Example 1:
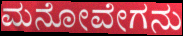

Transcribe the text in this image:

ಮನೋವೇಗನು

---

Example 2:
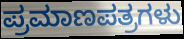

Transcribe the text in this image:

ಪ್ರಮಾಣಪತ್ರಗಳು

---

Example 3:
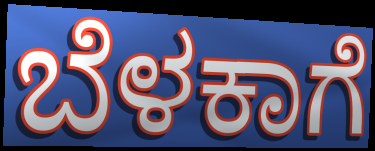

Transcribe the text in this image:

ಬೆಳಕಾಗೆ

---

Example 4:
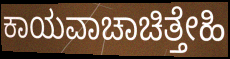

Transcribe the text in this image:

ಕಾಯವಾಚಾಚಿತ್ತೇಹಿ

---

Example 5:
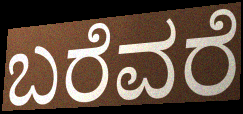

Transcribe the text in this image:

ಬರೆವರೆ